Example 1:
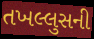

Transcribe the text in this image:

તખલ્લુસની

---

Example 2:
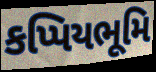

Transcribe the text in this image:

કપ્પિયભૂમિ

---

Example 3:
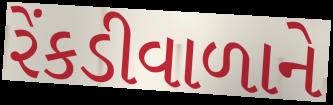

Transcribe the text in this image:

રેંકડીવાળાને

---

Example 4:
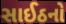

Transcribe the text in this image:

સાઈઠનો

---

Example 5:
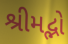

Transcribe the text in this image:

શ્રીમદ્ભો